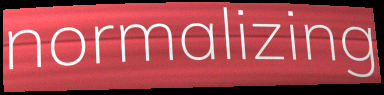
normalizing